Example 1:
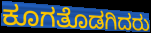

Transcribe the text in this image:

ಕೂಗತೊಡಗಿದರು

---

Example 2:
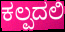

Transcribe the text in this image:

ಕಲ್ಪದಲಿ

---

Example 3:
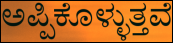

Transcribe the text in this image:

ಅಪ್ಪಿಕೊಳ್ಳುತ್ತವೆ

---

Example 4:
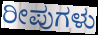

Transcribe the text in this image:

ರೀಪುಗಳು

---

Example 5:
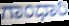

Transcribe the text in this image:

ಗಾಂಧಾರಿ